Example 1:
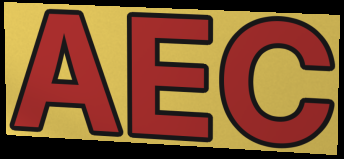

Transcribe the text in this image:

AEC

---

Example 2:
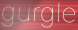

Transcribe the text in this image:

gurgle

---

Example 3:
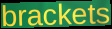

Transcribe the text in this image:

brackets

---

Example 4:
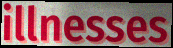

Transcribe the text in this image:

illnesses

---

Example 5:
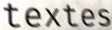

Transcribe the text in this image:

textes